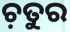
ଚ଼ତୁର